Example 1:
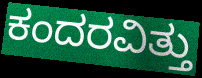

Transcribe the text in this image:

ಕಂದರವಿತ್ತು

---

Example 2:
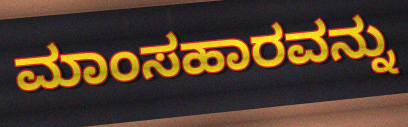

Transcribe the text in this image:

ಮಾಂಸಹಾರವನ್ನು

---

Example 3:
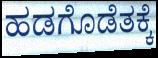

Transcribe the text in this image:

ಹಡಗೊಡೆತಕ್ಕೆ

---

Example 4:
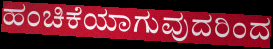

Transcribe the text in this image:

ಹಂಚಿಕೆಯಾಗುವುದರಿಂದ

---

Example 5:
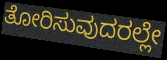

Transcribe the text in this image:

ತೋರಿಸುವುದರಲ್ಲೇ